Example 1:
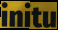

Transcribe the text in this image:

initu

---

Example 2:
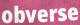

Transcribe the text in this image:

obverse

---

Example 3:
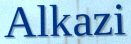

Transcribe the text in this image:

Alkazi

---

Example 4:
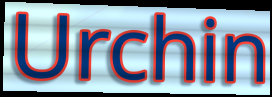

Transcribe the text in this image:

Urchin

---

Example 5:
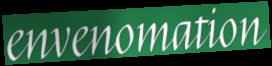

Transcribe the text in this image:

envenomation